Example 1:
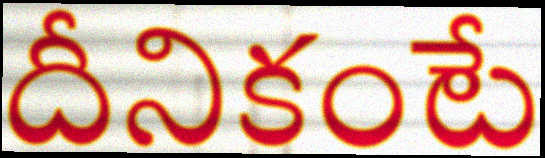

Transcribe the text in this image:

దీనికంటే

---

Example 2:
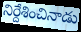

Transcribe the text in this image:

నిర్దేశించినాడు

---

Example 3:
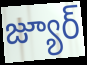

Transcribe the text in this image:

జ్యూర్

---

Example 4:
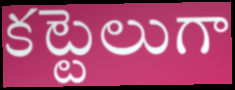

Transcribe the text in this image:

కట్టెలుగా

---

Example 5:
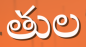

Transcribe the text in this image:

తుల